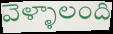
వెళ్ళాలంది